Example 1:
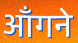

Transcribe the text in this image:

आँगने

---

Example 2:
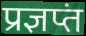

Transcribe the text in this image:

प्रज्ञप्तं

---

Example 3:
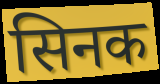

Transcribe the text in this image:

सिनक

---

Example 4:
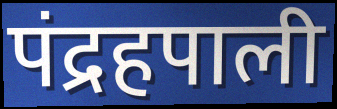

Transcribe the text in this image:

पंद्रहपाली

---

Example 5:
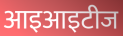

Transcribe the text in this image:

आइआइटीज